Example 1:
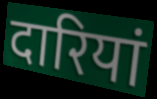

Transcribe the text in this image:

दारियां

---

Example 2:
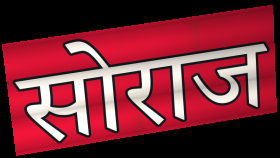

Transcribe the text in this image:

सोराज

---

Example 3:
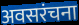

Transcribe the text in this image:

अवसरंचना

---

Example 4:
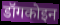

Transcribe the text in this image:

डॉगकोइन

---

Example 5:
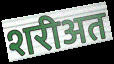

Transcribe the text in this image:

शरीअत